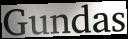
Gundas